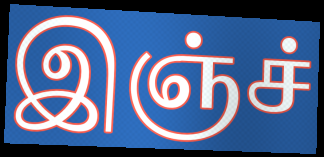
இஞ்ச்